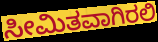
ಸೀಮಿತವಾಗಿರಲಿ